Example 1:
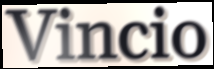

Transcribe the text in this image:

Vincio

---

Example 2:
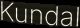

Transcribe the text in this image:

Kundal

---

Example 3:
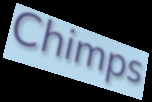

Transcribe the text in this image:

Chimps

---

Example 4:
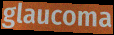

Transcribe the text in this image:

glaucoma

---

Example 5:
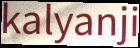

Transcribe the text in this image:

kalyanji